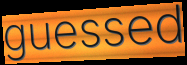
guessed